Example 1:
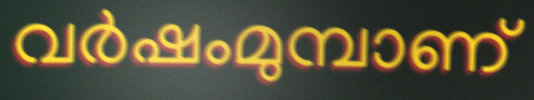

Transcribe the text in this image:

വർഷംമുമ്പാണ്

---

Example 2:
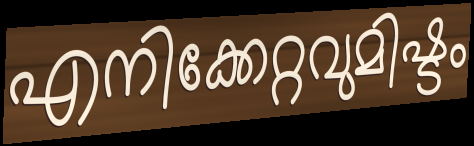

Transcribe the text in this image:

എനിക്കേറ്റവുമിഷ്ടം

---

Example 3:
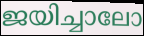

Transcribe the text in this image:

ജയിച്ചാലോ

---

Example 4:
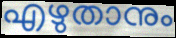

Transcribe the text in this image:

എഴുതാനും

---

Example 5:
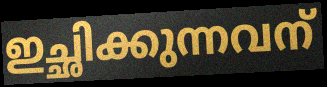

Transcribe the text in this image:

ഇച്ഛിക്കുന്നവന്